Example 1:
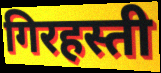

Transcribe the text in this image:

गिरहस्ती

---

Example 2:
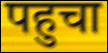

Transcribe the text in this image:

पहुचा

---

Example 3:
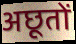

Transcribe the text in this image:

अछूतों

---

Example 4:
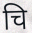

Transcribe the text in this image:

चि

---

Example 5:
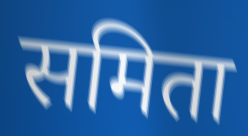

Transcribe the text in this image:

समिता